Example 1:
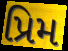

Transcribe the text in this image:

પ્રિમ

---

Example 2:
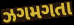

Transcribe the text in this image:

ઝગમગતા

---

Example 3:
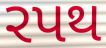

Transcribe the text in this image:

રપથ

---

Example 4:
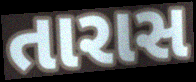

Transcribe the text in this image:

તારાસ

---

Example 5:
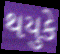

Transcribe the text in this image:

થયુકે